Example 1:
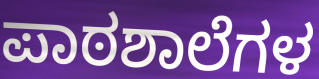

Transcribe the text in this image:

ಪಾಠಶಾಲೆಗಳ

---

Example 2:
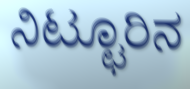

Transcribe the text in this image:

ನಿಟ್ಟೂರಿನ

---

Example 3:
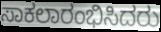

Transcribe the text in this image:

ಸಾಕಲಾರಂಭಿಸಿದರು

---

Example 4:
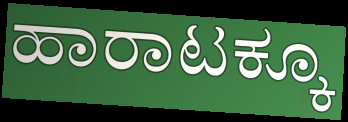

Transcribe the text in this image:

ಹಾರಾಟಕ್ಕೂ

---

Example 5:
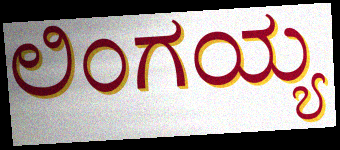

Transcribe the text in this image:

ಲಿಂಗಯ್ಯ